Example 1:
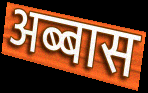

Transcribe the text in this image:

अब्बास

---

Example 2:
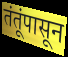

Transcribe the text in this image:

तंतूंपासून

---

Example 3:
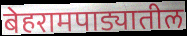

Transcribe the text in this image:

बेहरामपाड्यातील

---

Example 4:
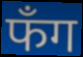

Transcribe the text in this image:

फँग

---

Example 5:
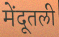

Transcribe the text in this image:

मेंदूतली